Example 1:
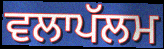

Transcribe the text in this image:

ਵਲਾਪੱਲਮ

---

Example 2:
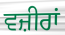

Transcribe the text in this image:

ਵਜ਼ੀਰਾਂ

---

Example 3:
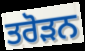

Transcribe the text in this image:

ਤਰੋੜਨ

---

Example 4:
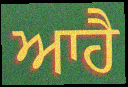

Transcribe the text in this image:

ਆਹੈ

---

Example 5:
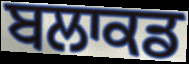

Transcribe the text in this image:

ਬਲਾਕਡ